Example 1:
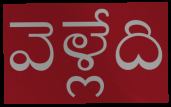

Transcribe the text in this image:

వెళ్లేది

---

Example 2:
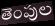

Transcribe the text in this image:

తెంపుల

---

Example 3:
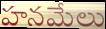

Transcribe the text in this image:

హనమేలు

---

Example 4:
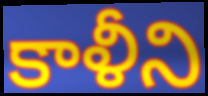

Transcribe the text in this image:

కాళీని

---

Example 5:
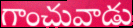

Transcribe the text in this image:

గాంచువాడు